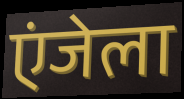
एंजेला